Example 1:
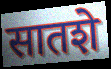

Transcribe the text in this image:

सातशे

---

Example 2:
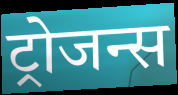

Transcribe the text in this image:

ट्रोजन्स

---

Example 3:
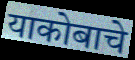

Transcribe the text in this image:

याकोबाचे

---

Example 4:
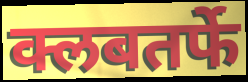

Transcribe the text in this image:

क्लबतर्फे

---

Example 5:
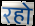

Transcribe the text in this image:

रहो